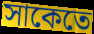
সাকেতে